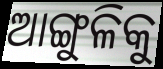
ଆଙ୍ଗୁଳିକୁ